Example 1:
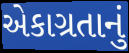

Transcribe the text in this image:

એકાગ્રતાનું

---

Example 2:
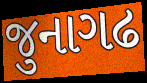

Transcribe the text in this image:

જુનાગઢ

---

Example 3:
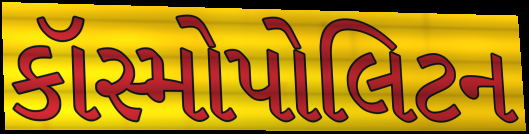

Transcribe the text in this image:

કૉસ્મોપોલિટન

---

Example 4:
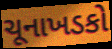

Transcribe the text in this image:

ચૂનાખડકો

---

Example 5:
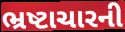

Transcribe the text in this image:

ભ્રષ્ટાચારની